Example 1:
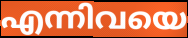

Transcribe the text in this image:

എന്നിവയെ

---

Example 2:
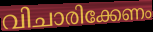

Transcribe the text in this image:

വിചാരിക്കേണം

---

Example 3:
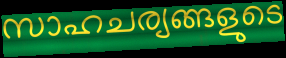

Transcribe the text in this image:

സാഹചര്യങ്ങളുടെ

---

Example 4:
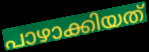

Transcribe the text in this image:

പാഴാക്കിയത്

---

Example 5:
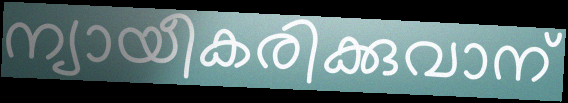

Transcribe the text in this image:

ന്യായീകരിക്കുവാന്